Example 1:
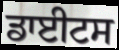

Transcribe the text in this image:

ਡਾਈਟਸ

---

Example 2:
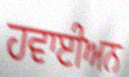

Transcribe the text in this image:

ਹਵਾਈਅਨ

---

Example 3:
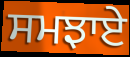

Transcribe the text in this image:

ਸਮਝਾਏ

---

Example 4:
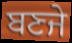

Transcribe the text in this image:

ਬਣਜੇ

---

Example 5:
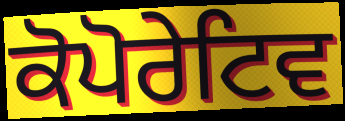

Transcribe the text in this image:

ਕੋਪੋਰੇਟਿਵ